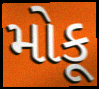
મોકૂ